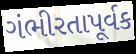
ગંભીરતાપૂર્વક